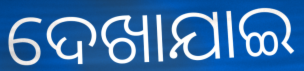
ଦେଖାଯାଇ